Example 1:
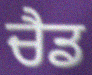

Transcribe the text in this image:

ਚੈਡ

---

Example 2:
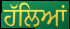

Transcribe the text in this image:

ਹੱਲਿਆਂ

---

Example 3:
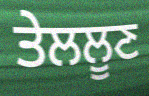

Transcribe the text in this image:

ਤੇਲਲੂਣ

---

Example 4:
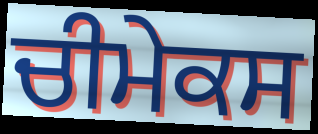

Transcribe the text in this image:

ਚੀਮੇਕਸ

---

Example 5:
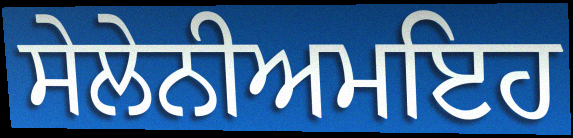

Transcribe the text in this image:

ਸੇਲੇਨੀਅਮਇਹ